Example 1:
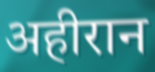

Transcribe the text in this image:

अहीरान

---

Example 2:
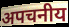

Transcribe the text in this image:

अपचनीय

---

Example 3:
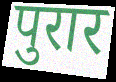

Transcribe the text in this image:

पुरार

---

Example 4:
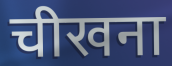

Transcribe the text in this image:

चीखना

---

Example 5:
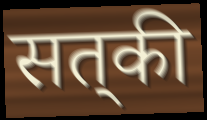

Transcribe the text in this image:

सत्‌की